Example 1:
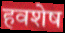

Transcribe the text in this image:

हवशेष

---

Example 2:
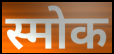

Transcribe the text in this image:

स्मोक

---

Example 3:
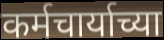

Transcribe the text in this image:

कर्मचार्याच्या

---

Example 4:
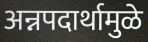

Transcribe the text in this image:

अन्नपदार्थामुळे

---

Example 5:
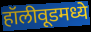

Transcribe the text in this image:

हॉलीवूडमध्ये